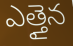
ఎత్తైన